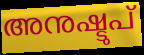
അനുഷ്ടുപ്